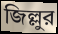
জিল্লুর